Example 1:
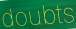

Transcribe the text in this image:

doubts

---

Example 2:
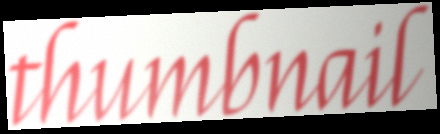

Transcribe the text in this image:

thumbnail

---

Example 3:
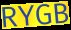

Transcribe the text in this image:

RYGB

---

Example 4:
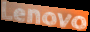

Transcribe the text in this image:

Lenovo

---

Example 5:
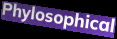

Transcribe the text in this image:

Phylosophical